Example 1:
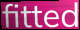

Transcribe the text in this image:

fitted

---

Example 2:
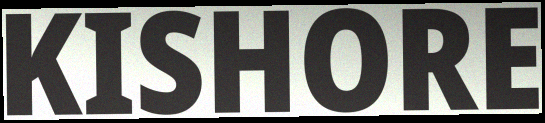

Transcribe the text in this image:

KISHORE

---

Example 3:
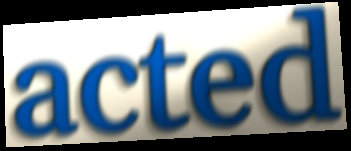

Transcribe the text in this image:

acted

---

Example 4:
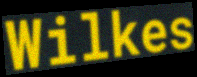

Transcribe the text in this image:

Wilkes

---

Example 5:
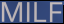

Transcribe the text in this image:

MILF